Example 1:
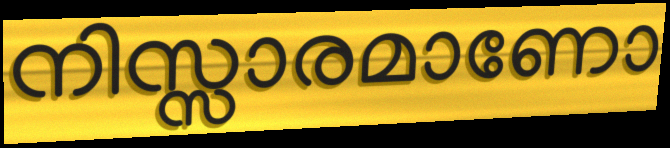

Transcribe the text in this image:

നിസ്സാരമാണോ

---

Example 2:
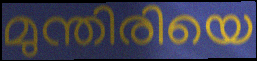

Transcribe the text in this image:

മുന്തിരിയെ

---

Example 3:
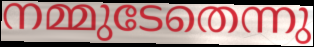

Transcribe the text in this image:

നമ്മുടേതെന്നു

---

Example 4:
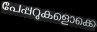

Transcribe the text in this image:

പേപ്പറുകളൊക്കെ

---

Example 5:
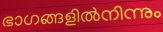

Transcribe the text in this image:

ഭാഗങ്ങളിൽനിന്നും